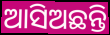
ଆସିଅଛନ୍ତି